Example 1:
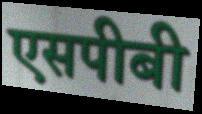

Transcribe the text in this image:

एसपीबी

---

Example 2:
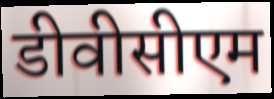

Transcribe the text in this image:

डीवीसीएम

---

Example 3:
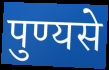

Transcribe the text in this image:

पुण्यसे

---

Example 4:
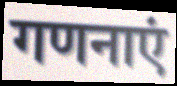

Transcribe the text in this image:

गणनाएं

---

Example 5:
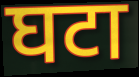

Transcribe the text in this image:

घटा